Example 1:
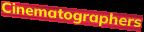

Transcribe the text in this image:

Cinematographers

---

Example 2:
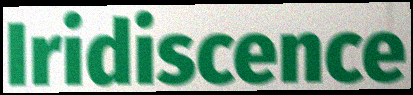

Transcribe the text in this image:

Iridiscence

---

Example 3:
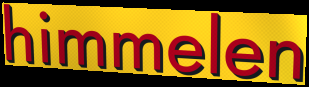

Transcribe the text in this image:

himmelen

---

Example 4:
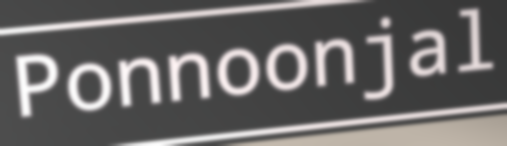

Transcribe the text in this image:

Ponnoonjal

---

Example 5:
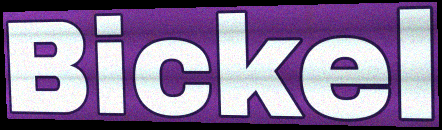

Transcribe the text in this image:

Bickel